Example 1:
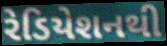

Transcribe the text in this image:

રેડિયેશનથી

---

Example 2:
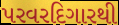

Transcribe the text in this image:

પરવરદિગારથી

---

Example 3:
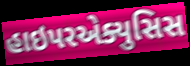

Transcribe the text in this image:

હાઇપરએક્યુસિસ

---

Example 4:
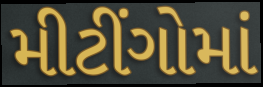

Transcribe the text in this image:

મીટીંગોમાં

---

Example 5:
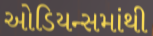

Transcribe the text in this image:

ઓડિયન્સમાંથી